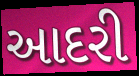
આદરી